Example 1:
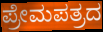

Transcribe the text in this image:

ಪ್ರೇಮಪತ್ರದ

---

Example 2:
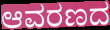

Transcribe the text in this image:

ಆವರಣದ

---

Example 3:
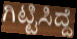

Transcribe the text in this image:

ಗಿಟ್ಟಿಸಿದ್ದೆ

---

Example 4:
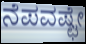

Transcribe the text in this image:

ನೆಪವಷ್ಟೇ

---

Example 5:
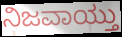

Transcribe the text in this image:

ನಿಜವಾಯ್ತು